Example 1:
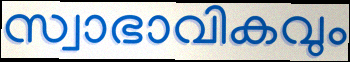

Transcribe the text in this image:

സ്വാഭാവികവും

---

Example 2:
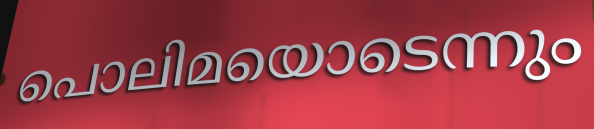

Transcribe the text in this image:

പൊലിമയൊടെന്നും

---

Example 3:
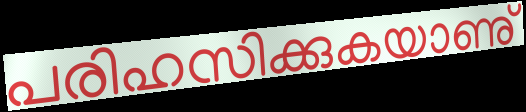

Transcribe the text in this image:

പരിഹസിക്കുകയാണു്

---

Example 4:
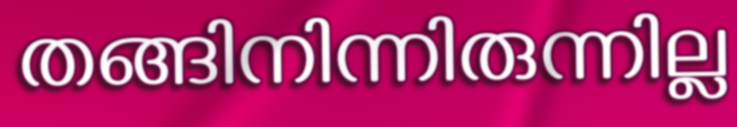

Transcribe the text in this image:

തങ്ങിനിന്നിരുന്നില്ല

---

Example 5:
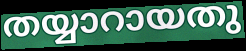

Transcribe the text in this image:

തയ്യാറായതു